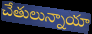
చేతులున్నాయా